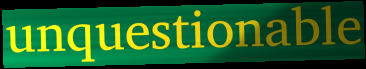
unquestionable